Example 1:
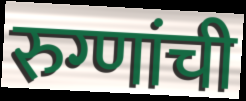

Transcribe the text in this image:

रुग्‍णांची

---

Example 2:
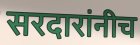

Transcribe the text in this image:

सरदारांनीच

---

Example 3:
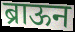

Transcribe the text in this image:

ब्राऊन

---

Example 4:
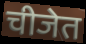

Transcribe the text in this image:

चीजेत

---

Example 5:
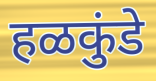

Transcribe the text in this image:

हळकुंडे